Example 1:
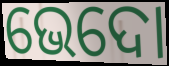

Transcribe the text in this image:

ଭେଦୋ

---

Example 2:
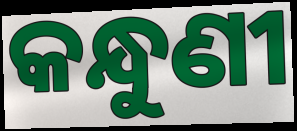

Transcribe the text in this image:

କନ୍ଧୁଣୀ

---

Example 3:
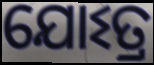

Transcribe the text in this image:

ଯୋଽତ୍ର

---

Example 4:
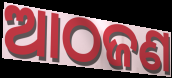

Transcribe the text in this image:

ଆଠଜଣ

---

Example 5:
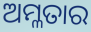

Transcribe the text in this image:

ଅମ୍ଳତାର